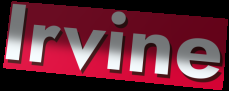
Irvine